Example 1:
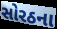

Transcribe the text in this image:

સોરઠના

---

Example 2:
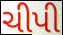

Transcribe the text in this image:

ચીપી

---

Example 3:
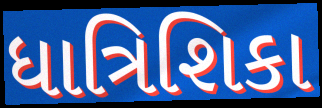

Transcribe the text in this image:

ધાત્રિશિકા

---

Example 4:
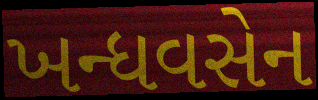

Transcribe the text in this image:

ખન્ધવસેન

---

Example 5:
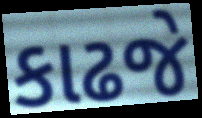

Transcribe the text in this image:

કાઢજે